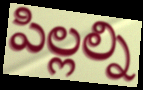
పిల్లల్ని